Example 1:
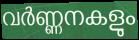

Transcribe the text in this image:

വർണ്ണനകളും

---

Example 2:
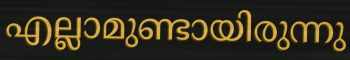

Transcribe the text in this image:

എല്ലാമുണ്ടായിരുന്നു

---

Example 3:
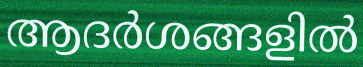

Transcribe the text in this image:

ആദർശങ്ങളിൽ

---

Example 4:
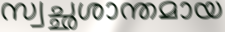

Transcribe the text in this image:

സ്വച്ഛശാന്തമായ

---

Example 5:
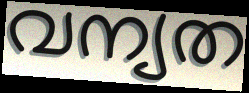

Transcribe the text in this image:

വന്യത